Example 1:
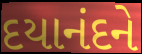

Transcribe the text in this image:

દયાનંદને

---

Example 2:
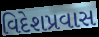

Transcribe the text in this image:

વિદેશપ્રવાસ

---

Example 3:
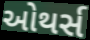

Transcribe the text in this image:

ઓથર્સ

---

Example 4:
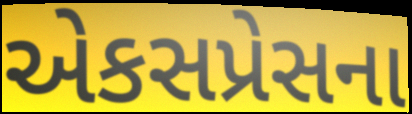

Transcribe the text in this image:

એકસપ્રેસના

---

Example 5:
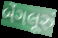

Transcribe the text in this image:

બેંગલૂરું